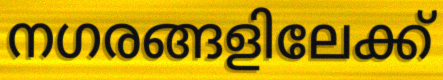
നഗരങ്ങളിലേക്ക്